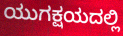
ಯುಗಕ್ಷಯದಲ್ಲಿ